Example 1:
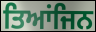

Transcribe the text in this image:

ਤਿਆਂਜਿਨ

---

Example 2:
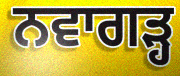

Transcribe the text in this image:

ਨਵਾਗੜ੍ਹ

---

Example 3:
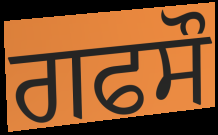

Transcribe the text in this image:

ਗਫਸੌ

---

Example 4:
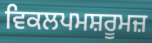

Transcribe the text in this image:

ਵਿਕਲਪਮਸ਼ਰੂਮਜ਼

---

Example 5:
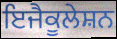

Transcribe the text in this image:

ਇਜੈਕੂਲੇਸ਼ਨ